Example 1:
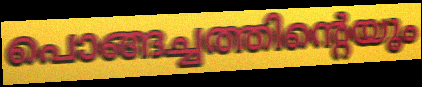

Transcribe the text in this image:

പൊങ്ങച്ചത്തിന്റെയും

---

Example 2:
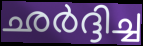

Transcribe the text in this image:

ഛർദ്ദിച്ച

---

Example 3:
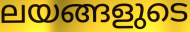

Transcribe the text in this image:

ലയങ്ങളുടെ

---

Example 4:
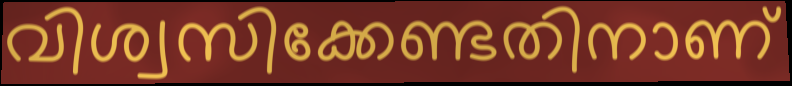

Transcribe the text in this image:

വിശ്വസിക്കേണ്ടതിനാണ്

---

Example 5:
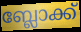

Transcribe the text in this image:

ബ്ലോക്ക്